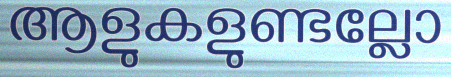
ആളുകളുണ്ടല്ലോ